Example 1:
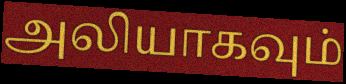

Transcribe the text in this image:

அலியாகவும்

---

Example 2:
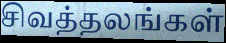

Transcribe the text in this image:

சிவத்தலங்கள்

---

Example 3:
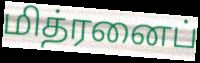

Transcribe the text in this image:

மித்ரனைப்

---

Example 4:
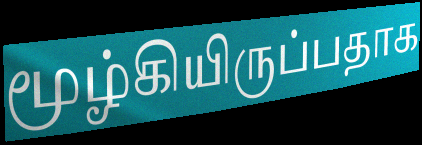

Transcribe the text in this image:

மூழ்கியிருப்பதாக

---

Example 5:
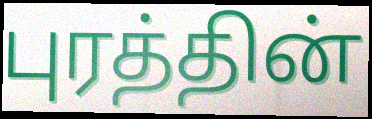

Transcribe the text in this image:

புரத்தின்